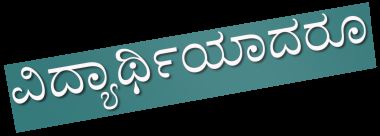
ವಿದ್ಯಾರ್ಥಿಯಾದರೂ